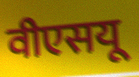
वीएसयू